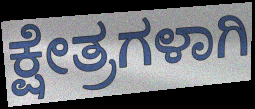
ಕ್ಷೇತ್ರಗಳಾಗಿ